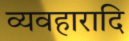
व्यवहारादि